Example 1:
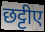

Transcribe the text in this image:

छट्टीए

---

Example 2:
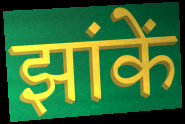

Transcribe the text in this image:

झांकें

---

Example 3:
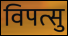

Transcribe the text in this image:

विपत्सु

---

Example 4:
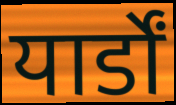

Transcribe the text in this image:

यार्डों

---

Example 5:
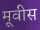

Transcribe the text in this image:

मूवीस